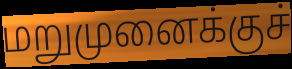
மறுமுனைக்குச்